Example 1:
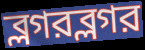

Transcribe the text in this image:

ব্লগরব্লগর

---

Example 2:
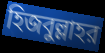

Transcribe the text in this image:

হিজবুল্লাহর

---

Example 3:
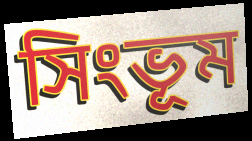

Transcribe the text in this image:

সিংভূম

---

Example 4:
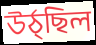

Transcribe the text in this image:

উঠ্ছিল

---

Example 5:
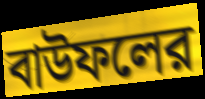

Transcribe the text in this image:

বাউফলের